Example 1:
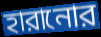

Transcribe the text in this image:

হারানোর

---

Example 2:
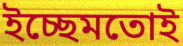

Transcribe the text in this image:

ইচ্ছেমতোই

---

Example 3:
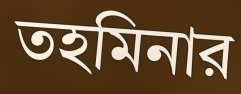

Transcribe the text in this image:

তহমিনার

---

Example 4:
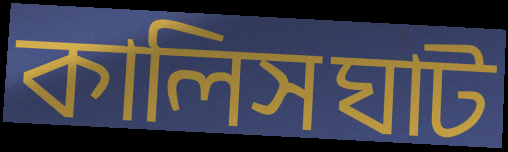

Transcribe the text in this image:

কালিসঘাট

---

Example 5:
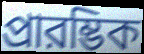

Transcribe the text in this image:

প্রারম্ভিক